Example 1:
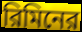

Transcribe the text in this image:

রিমিনের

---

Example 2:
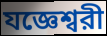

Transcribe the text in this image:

যজ্ঞেশ্বরী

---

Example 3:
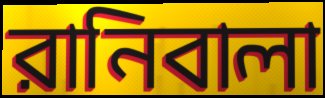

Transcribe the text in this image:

রানিবালা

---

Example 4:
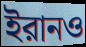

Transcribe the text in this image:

ইরানও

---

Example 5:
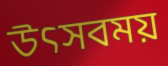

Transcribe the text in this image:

উৎসবময়